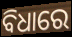
ବିଧାରେ